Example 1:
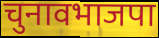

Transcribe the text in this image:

चुनावभाजपा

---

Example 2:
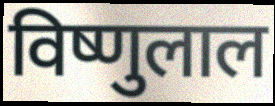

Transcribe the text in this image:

विष्णुलाल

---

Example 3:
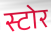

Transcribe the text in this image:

स्टोर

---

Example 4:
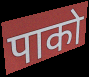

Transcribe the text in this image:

पाको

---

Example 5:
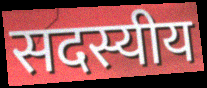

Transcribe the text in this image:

सदस्यीय